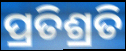
ପ୍ରତିଶ୍ରତି